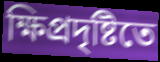
ক্ষিপ্রদৃষ্টিতে